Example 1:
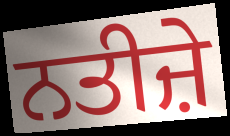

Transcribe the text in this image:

ਨਤੀਜ਼ੇ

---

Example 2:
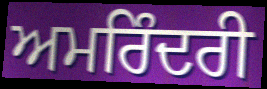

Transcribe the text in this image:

ਅਮਰਿੰਦਰੀ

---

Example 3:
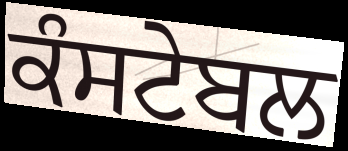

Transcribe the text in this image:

ਕੰਸਟੇਬਲ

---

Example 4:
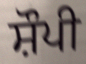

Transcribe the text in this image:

ਸ਼ੌਪੀ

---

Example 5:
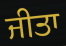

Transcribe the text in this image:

ਜੀਤਾ